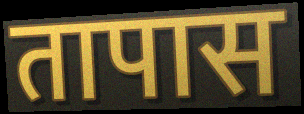
तापास